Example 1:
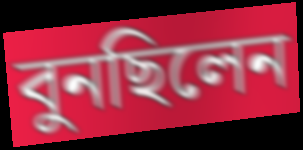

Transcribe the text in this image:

বুনছিলেন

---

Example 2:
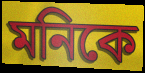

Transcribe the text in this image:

মনিকে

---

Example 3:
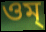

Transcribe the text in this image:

ওম্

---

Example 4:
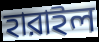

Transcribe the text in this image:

হারাইল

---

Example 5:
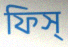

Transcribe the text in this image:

ফিস্